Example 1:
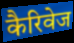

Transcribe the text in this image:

कैरिवेज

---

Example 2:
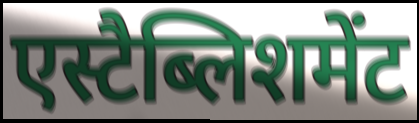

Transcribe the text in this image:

एस्टैब्लिशमेंट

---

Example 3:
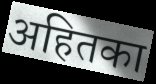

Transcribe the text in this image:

अहितका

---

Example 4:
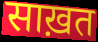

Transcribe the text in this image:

साख़त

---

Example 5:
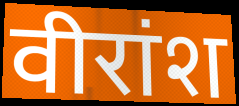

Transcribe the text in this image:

वीरांश